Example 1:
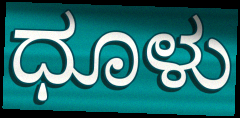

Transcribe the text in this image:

ಧೂಳು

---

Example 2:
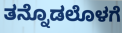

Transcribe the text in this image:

ತನ್ನೊಡಲೊಳಗೆ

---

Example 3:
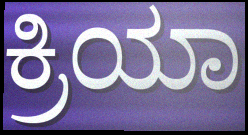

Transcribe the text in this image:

ಕ್ರಿಯಾ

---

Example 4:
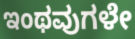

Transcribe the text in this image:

ಇಂಥವುಗಳೇ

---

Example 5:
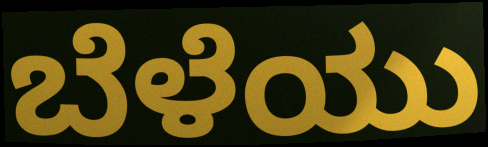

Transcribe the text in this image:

ಬೆಳೆಯು